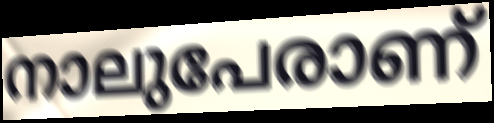
നാലുപേരാണ്